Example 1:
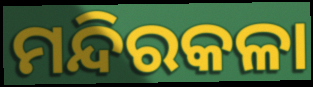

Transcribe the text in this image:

ମନ୍ଦିରକଳା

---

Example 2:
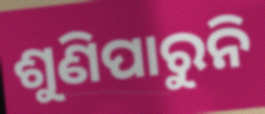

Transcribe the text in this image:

ଶୁଣିପାରୁନି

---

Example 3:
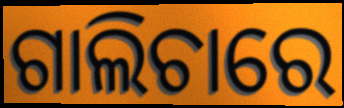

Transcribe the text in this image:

ଗାଲିଚାରେ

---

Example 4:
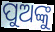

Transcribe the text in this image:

ପୁଅଙ୍କୁ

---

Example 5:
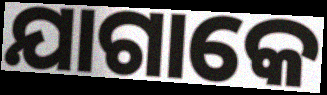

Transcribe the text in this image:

ଯାଗାକେ